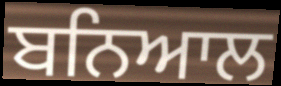
ਬਨਿਆਲ